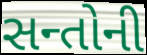
સન્તોની